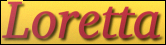
Loretta